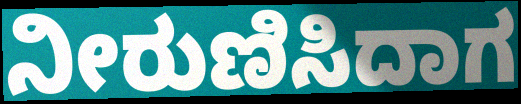
ನೀರುಣಿಸಿದಾಗ